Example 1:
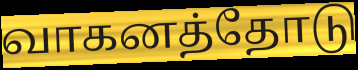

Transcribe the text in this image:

வாகனத்தோடு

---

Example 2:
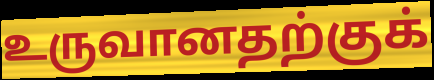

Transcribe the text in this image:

உருவானதற்குக்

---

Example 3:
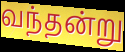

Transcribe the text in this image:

வந்தன்று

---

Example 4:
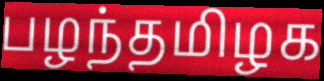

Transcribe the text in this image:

பழந்தமிழக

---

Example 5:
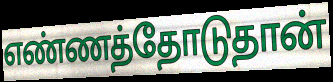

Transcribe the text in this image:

எண்ணத்தோடுதான்